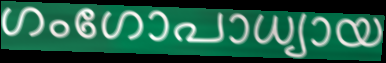
ഗംഗോപാധ്യായ